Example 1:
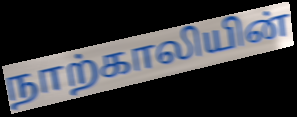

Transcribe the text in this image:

நாற்காலியின்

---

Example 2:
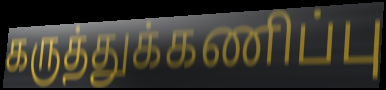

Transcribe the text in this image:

கருத்துக்கணிப்பு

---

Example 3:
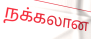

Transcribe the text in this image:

நக்கலான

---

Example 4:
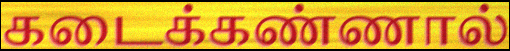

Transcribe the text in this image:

கடைக்கண்ணால்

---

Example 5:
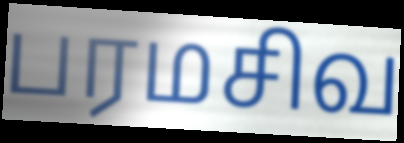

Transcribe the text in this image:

பரமசிவ